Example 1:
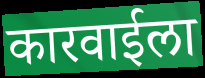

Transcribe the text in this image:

कारवाईला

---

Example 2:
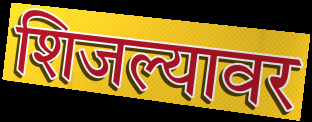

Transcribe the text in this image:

शिजल्यावर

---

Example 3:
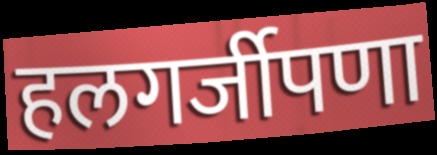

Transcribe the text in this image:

हलगर्जीपणा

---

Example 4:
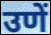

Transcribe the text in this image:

उणें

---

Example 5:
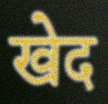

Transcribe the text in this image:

खेद